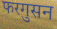
फरगुसन